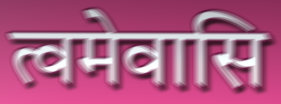
त्वमेवासि